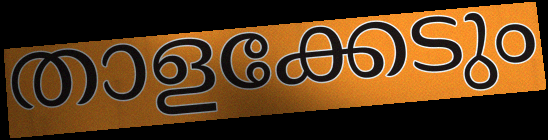
താളക്കേടും